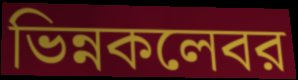
ভিন্নকলেবর